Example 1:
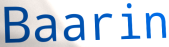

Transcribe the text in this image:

Baarin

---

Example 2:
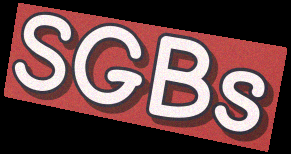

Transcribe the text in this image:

SGBs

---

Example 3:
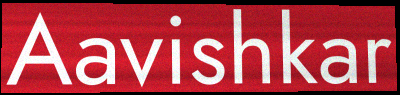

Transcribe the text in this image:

Aavishkar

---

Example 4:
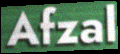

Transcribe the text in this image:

Afzal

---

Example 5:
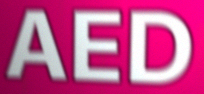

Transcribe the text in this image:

AED